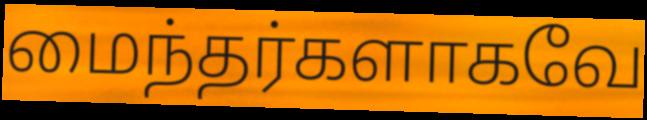
மைந்தர்களாகவே